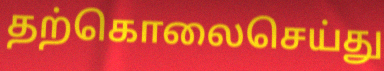
தற்கொலைசெய்து